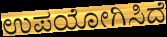
ಉಪಯೋಗಿಸಿದೆ